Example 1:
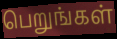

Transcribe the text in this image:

பெறுங்கள்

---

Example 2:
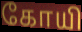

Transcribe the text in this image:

கோயி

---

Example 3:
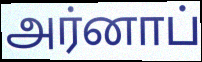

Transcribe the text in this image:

அர்னாப்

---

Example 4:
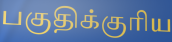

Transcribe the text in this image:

பகுதிக்குரிய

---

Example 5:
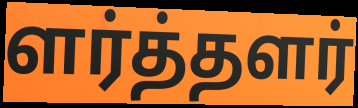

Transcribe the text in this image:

ளர்த்தளர்